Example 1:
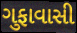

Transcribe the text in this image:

ગુફાવાસી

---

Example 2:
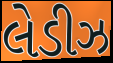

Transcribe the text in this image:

લેડીઝ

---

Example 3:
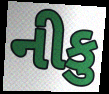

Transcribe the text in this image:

નીકુ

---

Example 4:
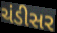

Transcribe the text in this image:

ચંડીસર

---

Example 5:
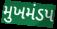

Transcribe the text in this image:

મુખમંડપ